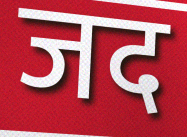
जद